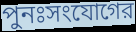
পুনঃসংযোগের